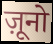
ज़ूनो